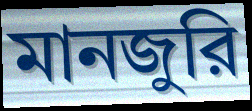
মানজুরি